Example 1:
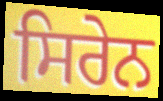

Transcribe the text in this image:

ਸਿਰੇਨ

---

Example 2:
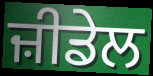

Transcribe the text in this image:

ਜ਼ੀਡੇਲ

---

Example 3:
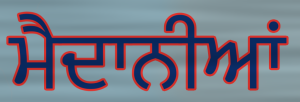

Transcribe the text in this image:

ਮੈਦਾਨੀਆਂ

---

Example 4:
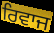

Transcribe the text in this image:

ਰਿਵਾਜ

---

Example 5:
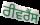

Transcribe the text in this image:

ਰੀਵਰੈਂਸ